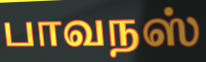
பாவநஸ்